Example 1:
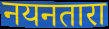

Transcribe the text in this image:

नयनतारा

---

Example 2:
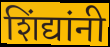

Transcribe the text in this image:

शिंद्यांनी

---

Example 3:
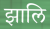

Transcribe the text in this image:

झालि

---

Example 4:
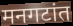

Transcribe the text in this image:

मनगटांत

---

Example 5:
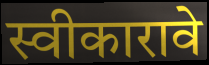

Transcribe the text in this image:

स्वीकारावे